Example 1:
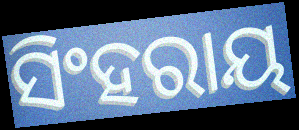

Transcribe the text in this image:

ସିଂହରାୟ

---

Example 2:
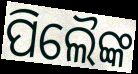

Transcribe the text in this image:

ପିଲୈଙ୍କ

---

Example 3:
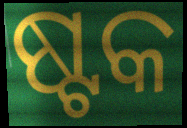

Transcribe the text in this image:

ଷ୍ଟକ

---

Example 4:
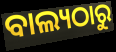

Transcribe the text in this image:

ବାଲ୍ୟଠାରୁ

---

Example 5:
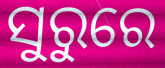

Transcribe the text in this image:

ସୁରୁରେ